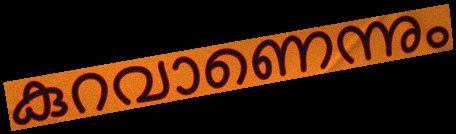
കുറവാണെന്നും